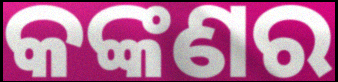
କଙ୍କଣର